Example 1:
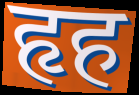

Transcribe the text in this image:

हृह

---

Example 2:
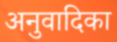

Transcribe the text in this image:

अनुवादिका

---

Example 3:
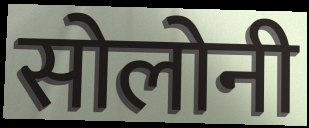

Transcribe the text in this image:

सोलोनी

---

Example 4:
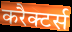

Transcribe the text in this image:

करैक्टर्स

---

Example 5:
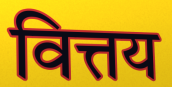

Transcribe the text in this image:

वित्तय